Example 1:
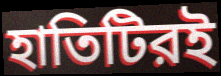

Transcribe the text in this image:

হাতিটিরই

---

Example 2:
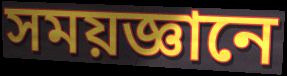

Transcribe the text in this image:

সময়জ্ঞানে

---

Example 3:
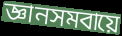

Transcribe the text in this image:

জ্ঞানসমবায়ে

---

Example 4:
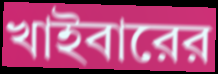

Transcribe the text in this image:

খাইবারের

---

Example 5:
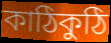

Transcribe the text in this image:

কাঠিকুঠি